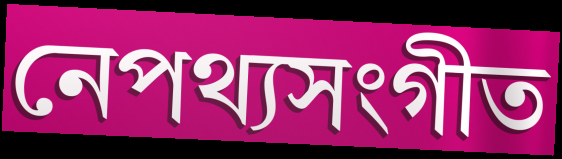
নেপথ্যসংগীত